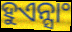
ହୁଏନ୍ସାଂ